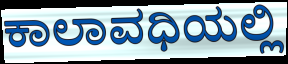
ಕಾಲಾವಧಿಯಲ್ಲಿ